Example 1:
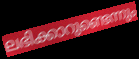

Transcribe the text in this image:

ലഭിക്കാറുണ്ടെന്നും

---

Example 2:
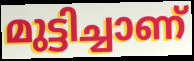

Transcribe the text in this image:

മുട്ടിച്ചാണ്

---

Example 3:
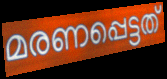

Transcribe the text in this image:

മരണപ്പെട്ടത്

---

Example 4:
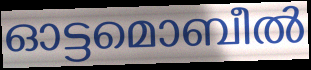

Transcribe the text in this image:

ഓട്ടമൊബീൽ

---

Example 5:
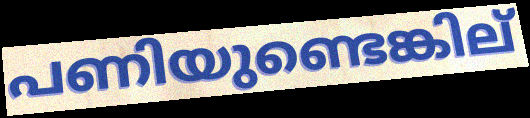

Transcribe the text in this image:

പണിയുണ്ടെങ്കില്